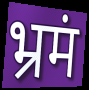
भ्रमं